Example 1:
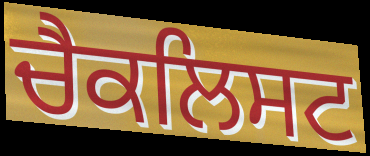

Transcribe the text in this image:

ਚੈਕਲਿਸਟ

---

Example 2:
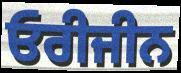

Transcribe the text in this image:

ਓਰੀਜੀਨ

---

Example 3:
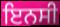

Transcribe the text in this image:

ਇਨਸੀ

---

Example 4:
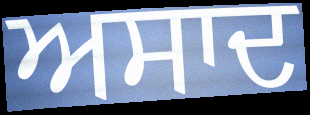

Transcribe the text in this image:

ਅਸਾਦ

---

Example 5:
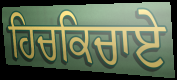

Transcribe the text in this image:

ਹਿਚਕਿਚਾਏ